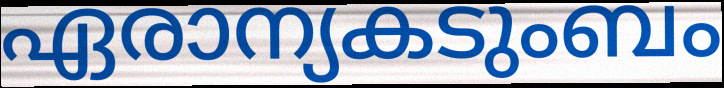
ഏരാന്യകടുംബം